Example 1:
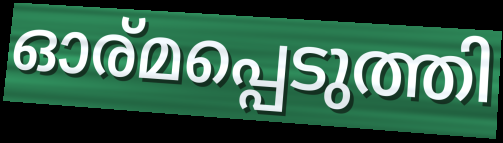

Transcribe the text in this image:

ഓര്മപ്പെടുത്തി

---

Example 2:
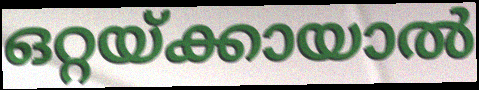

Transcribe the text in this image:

ഒറ്റയ്ക്കായാൽ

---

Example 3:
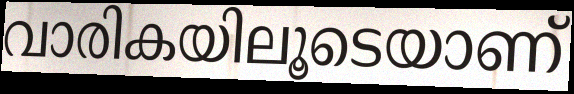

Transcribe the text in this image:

വാരികയിലൂടെയാണ്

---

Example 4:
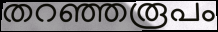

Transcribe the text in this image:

തറഞ്ഞരൂപം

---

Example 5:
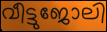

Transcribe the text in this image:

വീട്ടുജോലി